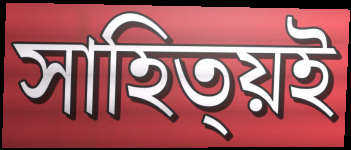
সাহিত্য়ই